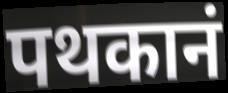
पथकानं